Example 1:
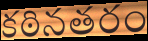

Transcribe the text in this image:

కఠినతరం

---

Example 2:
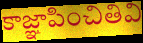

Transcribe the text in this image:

కాజ్ఞాపించితివి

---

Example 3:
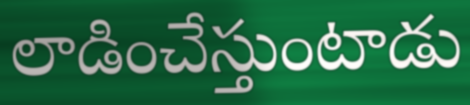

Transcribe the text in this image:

లాడించేస్తుంటాడు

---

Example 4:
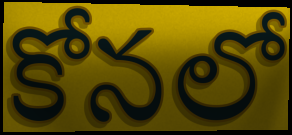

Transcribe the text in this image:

కోనలో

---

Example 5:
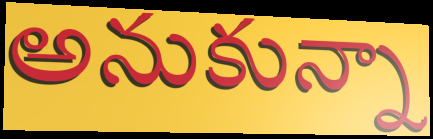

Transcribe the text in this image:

అనుకున్నా